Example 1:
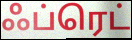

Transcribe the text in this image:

ஃப்ரெட்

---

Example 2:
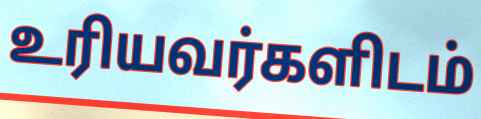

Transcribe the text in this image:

உரியவர்களிடம்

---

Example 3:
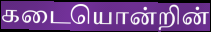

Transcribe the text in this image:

கடையொன்றின்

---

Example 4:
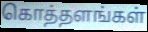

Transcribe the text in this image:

கொத்தளங்கள்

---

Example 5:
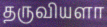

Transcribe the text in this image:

தருவியளா